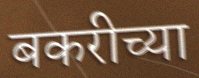
बकरीच्या